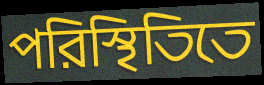
পরিস্থিতিতে